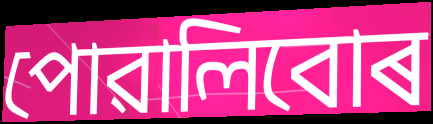
পোৱালিবোৰ